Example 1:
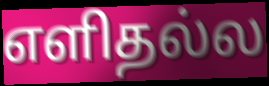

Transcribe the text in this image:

எளிதல்ல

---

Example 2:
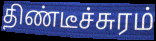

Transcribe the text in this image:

திண்டீச்சுரம்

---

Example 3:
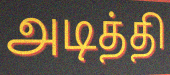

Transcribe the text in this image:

அடித்தி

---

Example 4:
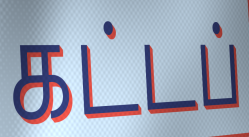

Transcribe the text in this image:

கட்டப்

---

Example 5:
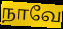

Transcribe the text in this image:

நாவே